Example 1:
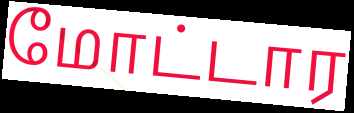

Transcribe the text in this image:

மோட்டார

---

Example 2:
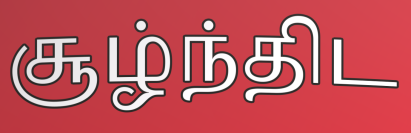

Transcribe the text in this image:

சூழ்ந்திட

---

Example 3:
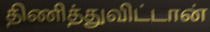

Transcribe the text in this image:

திணித்துவிட்டான்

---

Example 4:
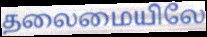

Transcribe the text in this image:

தலைமையிலே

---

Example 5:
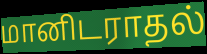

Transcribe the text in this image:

மானிடராதல்